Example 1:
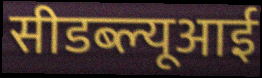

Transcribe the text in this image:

सीडब्ल्यूआई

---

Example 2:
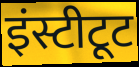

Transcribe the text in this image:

इंस्टीटूट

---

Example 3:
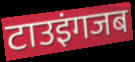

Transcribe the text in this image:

टाउइंगजब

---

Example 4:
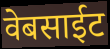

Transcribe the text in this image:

वेबसाईट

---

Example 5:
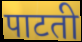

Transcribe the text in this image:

पाटती